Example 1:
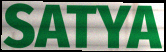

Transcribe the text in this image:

SATYA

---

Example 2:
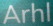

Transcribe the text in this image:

Arhl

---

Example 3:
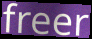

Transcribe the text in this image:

freer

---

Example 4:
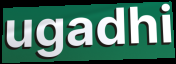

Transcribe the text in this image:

ugadhi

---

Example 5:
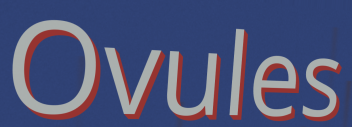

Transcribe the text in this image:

Ovules